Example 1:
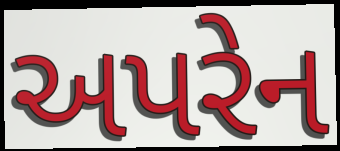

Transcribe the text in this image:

અપરેન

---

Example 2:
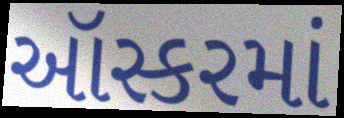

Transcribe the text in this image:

ઑસ્કરમાં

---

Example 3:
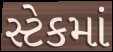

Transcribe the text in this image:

સ્ટેકમાં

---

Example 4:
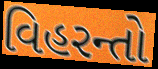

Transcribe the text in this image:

વિહરન્તો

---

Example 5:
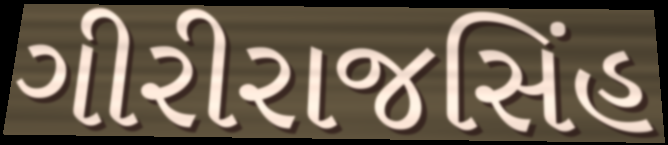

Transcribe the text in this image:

ગીરીરાજસિંહ